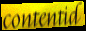
contentid